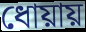
ধোয়ায়